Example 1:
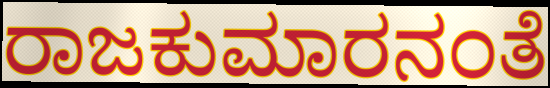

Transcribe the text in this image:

ರಾಜಕುಮಾರನಂತೆ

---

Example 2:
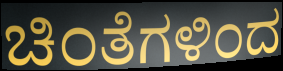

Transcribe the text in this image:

ಚಿಂತೆಗಳಿಂದ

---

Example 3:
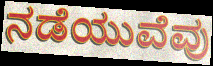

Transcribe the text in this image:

ನಡೆಯುವೆವು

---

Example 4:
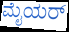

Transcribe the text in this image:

ಮೈಯರ್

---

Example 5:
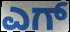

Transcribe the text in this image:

ಎಗ್